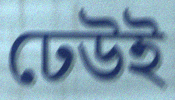
ঢেউই